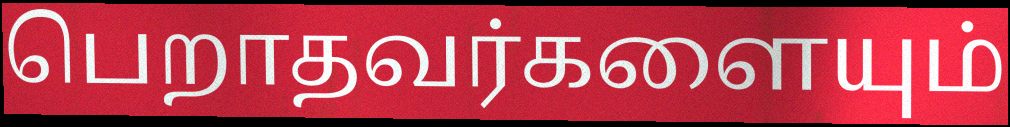
பெறாதவர்களையும்